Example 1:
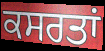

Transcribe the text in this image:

ਕਸਰਤਾਂ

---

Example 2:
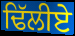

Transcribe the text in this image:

ਢਿੱਲੀਏ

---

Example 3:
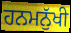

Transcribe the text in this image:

ਹਨਮਨੁੱਖੀ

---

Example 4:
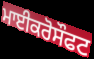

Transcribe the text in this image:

ਮਾਈਕਰੋਸੌਫਟ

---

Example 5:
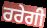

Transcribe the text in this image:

ਰਰੇਗੀ